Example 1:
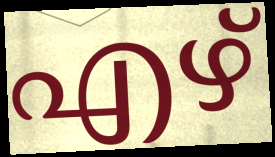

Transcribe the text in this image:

എഴ്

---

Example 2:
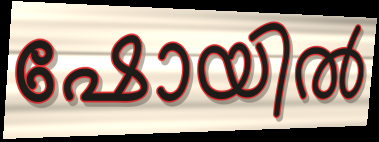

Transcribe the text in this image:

ഷോയിൽ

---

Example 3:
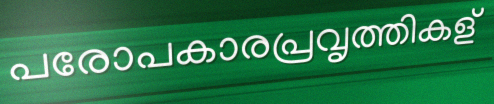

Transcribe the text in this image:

പരോപകാരപ്രവൃത്തികള്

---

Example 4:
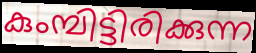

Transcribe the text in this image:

കുംമ്പിട്ടിരിക്കുന്ന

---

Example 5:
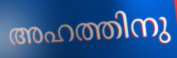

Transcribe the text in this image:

അഹത്തിനു